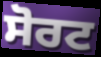
ਸੋਰਟ